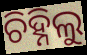
ଚିହ୍ନିଲୁ